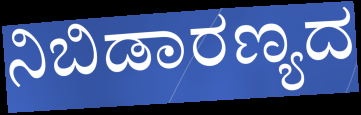
ನಿಬಿಡಾರಣ್ಯದ